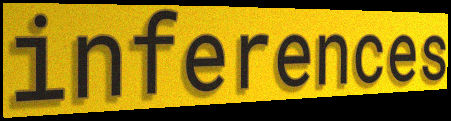
inferences